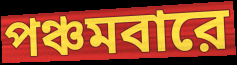
পঞ্চমবারে